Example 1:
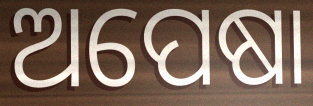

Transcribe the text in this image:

ଅପେଷା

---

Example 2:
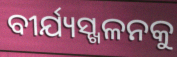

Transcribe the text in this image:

ବୀର୍ଯ୍ୟସ୍ଖଳନକୁ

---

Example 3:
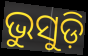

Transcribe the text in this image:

ଭୁସୁଡ଼ି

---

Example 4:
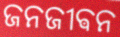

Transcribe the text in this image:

ଜନଜୀଵନ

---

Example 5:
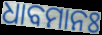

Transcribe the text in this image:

ଧାବମାନଃ